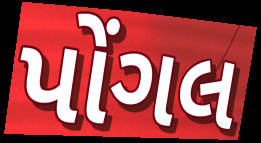
પોંગલ